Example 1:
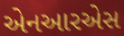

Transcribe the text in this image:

એનઆરએસ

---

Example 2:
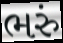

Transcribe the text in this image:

ભરું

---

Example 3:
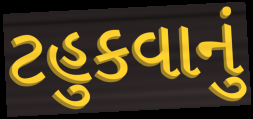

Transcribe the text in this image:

ટહુકવાનું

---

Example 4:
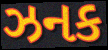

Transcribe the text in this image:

ઝનક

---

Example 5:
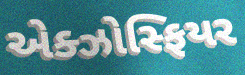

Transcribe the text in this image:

એક્ઝોસ્ફિયર